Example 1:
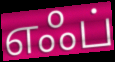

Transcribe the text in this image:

எஃப்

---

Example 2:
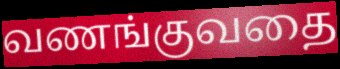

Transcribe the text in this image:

வணங்குவதை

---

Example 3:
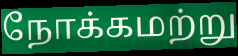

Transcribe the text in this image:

நோக்கமற்று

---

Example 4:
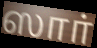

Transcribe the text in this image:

ஸார்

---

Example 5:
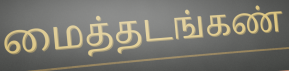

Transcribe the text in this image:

மைத்தடங்கண்